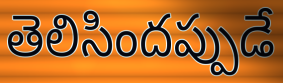
తెలిసిందప్పుడే